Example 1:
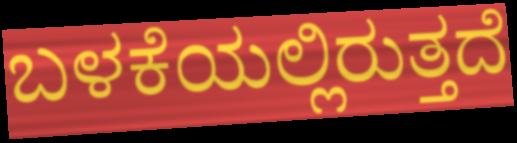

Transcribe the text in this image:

ಬಳಕೆಯಲ್ಲಿರುತ್ತದೆ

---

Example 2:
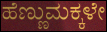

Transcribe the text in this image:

ಹೆಣ್ಣುಮಕ್ಕಳೇ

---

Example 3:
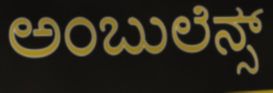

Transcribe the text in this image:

ಅಂಬುಲೆನ್ಸ್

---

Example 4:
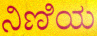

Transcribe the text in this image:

ನಿಣಿಯ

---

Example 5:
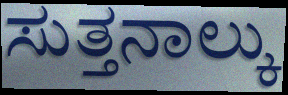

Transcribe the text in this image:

ಸುತ್ತನಾಲ್ಕು